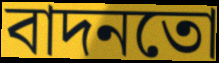
বাদনতো